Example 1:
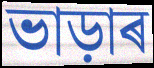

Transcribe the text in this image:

ভাড়াৰ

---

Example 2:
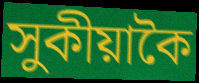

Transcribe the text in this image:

সুকীয়াকৈ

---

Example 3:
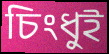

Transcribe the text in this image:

চিংধুই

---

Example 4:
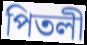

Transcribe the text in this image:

পিতলী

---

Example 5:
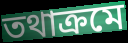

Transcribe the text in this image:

তথাক্ৰমে